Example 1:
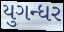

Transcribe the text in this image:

યુગન્ધર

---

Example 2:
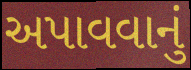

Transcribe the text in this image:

અપાવવાનું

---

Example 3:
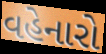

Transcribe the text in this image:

વહેનારો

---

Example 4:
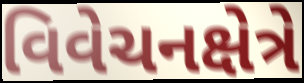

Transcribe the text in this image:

વિવેચનક્ષેત્રે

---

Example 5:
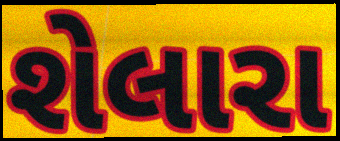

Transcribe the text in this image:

શેલારા